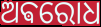
ଅଵରୋଧ